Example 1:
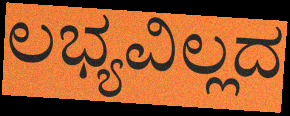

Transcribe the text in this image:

ಲಭ್ಯವಿಲ್ಲದ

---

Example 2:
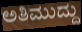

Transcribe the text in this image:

ಅತಿಮುದ್ದು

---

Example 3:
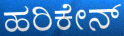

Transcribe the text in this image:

ಹರಿಕೇನ್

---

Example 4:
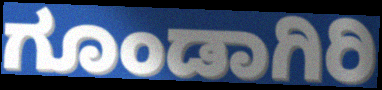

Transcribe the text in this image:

ಗೂಂಡಾಗಿರಿ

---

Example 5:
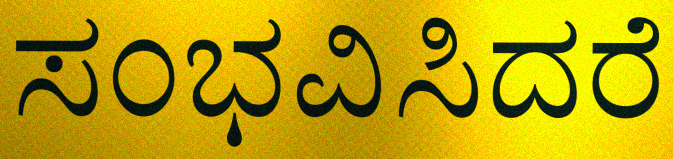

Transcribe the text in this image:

ಸಂಭವಿಸಿದರೆ